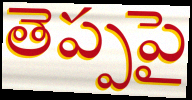
తెప్పపై